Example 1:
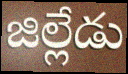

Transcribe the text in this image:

జిల్లేడు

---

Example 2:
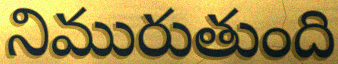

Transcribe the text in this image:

నిమురుతుంది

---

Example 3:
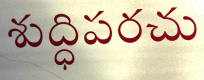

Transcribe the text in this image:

శుద్ధిపరచు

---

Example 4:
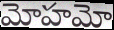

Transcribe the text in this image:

మోహమో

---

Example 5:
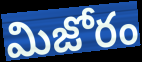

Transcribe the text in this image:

మిజోరం